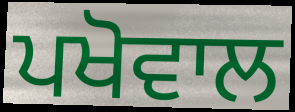
ਪਖੋਵਾਲ